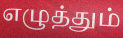
எழுத்தும்